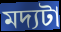
মদ্যটা